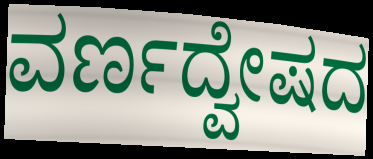
ವರ್ಣದ್ವೇಷದ